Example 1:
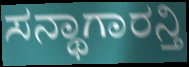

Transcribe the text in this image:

ಸನ್ಥಾಗಾರನ್ತಿ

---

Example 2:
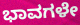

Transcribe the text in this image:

ಭಾವಗಳೇ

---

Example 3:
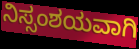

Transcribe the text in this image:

ನಿಸ್ಸಂಶಯವಾಗಿ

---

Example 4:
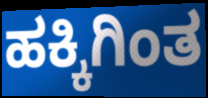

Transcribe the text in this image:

ಹಕ್ಕಿಗಿಂತ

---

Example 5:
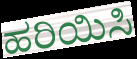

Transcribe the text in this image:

ಹರಿಯಿಸಿ